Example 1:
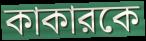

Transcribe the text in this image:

কাকারকে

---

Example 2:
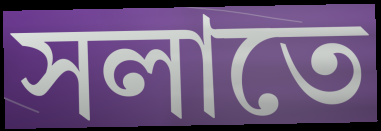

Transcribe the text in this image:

সলাতে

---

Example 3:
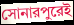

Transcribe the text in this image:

সোনারপুরেই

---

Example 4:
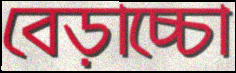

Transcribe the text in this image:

বেড়াচ্চো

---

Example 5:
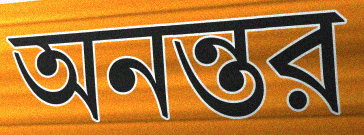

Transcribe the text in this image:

অনন্তর